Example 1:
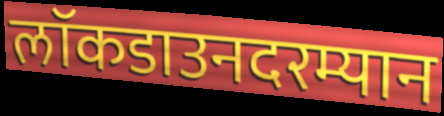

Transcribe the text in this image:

लॉकडाउनदरम्यान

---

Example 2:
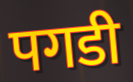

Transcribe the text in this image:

पगडी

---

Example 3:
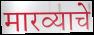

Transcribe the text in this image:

मारव्याचे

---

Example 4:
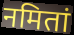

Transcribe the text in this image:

नमितां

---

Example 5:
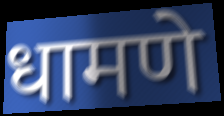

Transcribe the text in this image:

धामणे